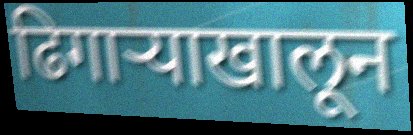
ढिगाऱ्याखालून